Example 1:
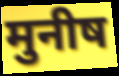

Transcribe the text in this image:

मुनीष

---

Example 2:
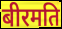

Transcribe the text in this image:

बीरमति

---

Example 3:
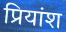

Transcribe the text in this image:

प्रियांश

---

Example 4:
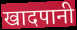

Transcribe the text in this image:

खादपानी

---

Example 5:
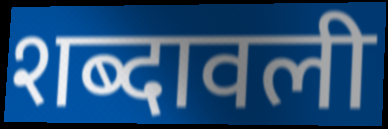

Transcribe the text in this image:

शब्दावली